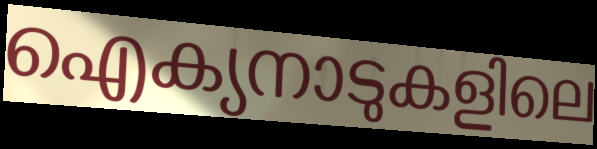
ഐക്യനാടുകളിലെ